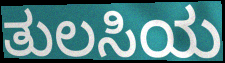
ತುಲಸಿಯ